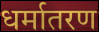
धर्मातरण